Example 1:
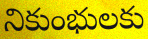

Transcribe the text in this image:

నికుంభులకు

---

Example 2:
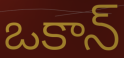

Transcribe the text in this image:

ఒకాన్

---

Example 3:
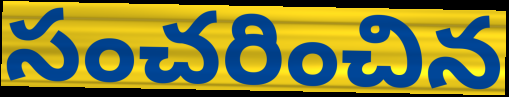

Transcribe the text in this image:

సంచరించిన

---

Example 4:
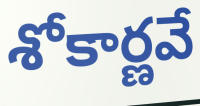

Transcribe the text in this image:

శోకార్ణవే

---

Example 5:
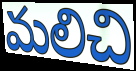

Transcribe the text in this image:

మలిచి